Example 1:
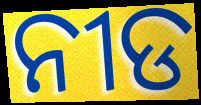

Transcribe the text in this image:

ନୀଡ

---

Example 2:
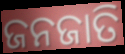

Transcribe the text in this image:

ଜନଜାତି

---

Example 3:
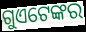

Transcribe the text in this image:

ଗୁଏଟେଙ୍କର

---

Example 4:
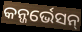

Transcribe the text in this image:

କନ୍ଜର୍ଭେସନ୍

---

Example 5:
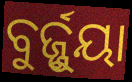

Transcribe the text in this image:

ବୁର୍ଜ୍ଜୁୟା